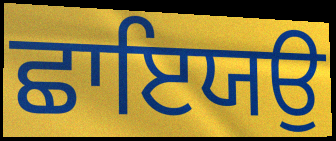
ਛਾਇਯਉ